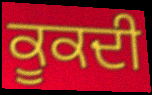
ਕੂਕਦੀ